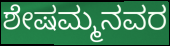
ಶೇಷಮ್ಮನವರ